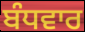
ਬੰਧਵਾਰ